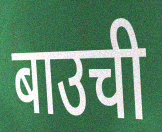
बाउची